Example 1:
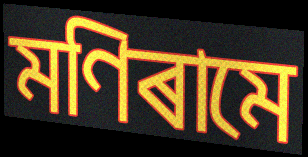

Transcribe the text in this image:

মণিৰামে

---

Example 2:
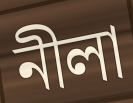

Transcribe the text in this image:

নীলা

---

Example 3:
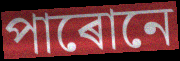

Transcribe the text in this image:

পাৰোনে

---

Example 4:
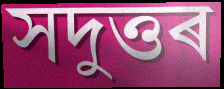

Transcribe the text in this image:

সদুত্তৰ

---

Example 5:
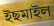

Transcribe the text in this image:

ইছমাইল